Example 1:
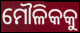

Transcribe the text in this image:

ମୌଳିକକୁ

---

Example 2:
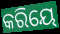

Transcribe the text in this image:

କରିୟେ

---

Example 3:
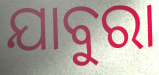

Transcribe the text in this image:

ଯାବୁରା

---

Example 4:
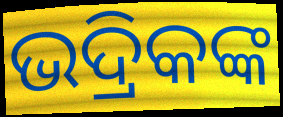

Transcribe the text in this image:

ଭଦ୍ରିକଙ୍କ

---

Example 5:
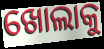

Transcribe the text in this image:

ଖୋଲାକୁ